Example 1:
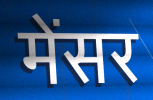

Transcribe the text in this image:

मेंसर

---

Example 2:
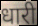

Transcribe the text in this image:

धारी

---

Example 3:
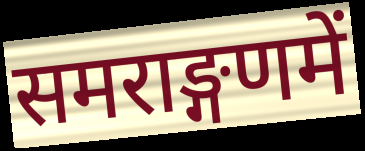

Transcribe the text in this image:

समराङ्गणमें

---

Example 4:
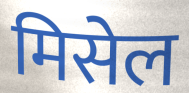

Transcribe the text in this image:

मिसेल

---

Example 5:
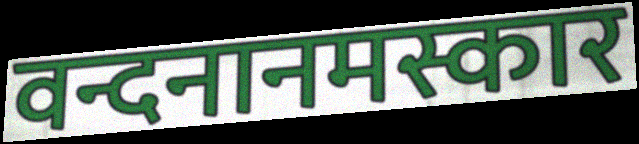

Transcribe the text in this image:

वन्दनानमस्कार